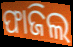
ଫାଜିଲ